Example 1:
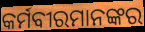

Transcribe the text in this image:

କର୍ମବୀରମାନଙ୍କର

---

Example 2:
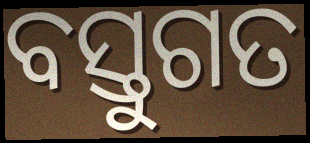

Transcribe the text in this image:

ବସ୍ତୁଗତ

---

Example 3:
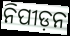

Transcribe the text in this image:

ନିପୀଡ଼ନ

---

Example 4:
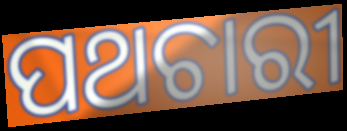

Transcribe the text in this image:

ପଥଚାରୀ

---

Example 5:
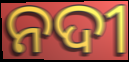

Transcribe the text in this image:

ନଦୀ